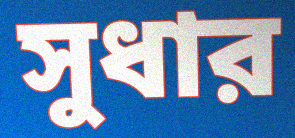
সুধার